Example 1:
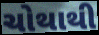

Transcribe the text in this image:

ચોથાથી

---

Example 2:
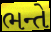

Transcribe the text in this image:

ભન્તે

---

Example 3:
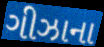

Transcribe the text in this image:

ગીઝાના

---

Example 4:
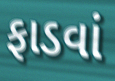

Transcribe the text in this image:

ફાડવાં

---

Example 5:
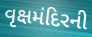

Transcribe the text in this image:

વૃક્ષમંદિરની